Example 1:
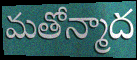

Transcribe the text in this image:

మతోన్మాద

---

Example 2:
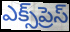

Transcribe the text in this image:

ఎక్స్‌ప్రెస్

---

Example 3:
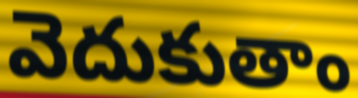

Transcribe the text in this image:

వెదుకుతాం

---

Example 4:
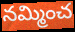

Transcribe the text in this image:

నమ్మించ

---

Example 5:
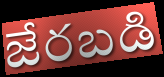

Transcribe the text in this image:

జేరబడి